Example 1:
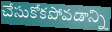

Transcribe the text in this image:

చేసుకోకపోవడాన్ని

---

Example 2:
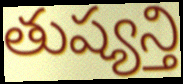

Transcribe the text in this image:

తుష్యన్తి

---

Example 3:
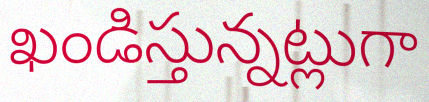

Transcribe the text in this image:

ఖండిస్తున్నట్లుగా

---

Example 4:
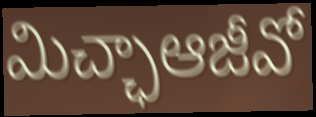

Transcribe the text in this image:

మిచ్ఛాఆజీవో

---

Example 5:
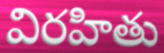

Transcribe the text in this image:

విరహితు